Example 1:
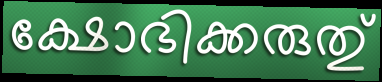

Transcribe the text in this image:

ക്ഷോഭിക്കരുതു്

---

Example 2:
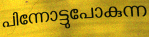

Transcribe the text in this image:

പിന്നോട്ടുപോകുന്ന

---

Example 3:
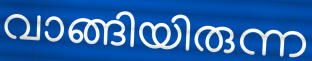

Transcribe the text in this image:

വാങ്ങിയിരുന്ന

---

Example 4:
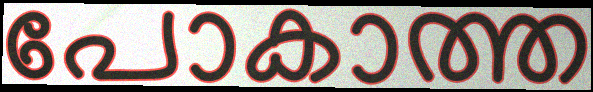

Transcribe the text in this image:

പോകാത്ത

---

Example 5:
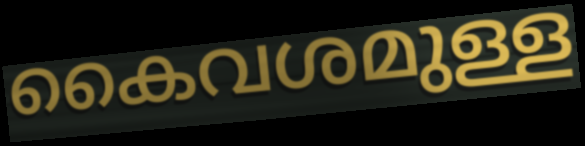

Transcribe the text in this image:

കൈവശമുള്ള